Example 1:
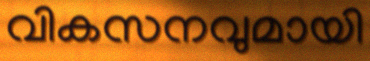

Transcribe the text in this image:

വികസനവുമായി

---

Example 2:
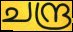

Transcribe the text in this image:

ചന്ദ്ര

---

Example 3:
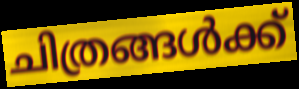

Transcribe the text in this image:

ചിത്രങ്ങൾക്ക്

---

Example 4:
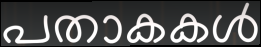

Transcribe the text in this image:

പതാകകൾ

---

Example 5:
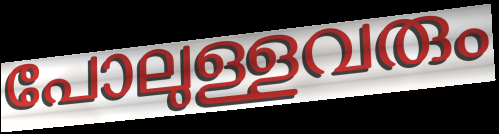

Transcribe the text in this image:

പോലുള്ളവരും